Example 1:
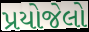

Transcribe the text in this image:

પ્રયોજેલો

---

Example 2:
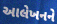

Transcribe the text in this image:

આલેખનને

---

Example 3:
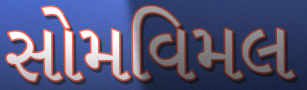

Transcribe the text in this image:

સોમવિમલ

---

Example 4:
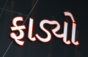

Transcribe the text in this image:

ફાડ્યો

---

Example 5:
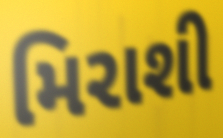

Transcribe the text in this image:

મિરાશી